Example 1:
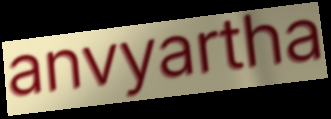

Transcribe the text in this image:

anvyartha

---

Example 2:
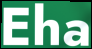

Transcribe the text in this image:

Eha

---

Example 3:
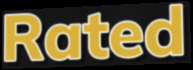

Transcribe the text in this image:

Rated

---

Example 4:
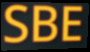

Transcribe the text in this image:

SBE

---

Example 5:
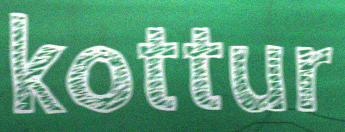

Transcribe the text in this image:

kottur